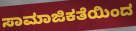
ಸಾಮಾಜಿಕತೆಯಿಂದ